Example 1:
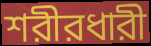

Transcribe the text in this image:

শরীরধারী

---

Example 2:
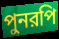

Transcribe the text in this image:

পুনরপি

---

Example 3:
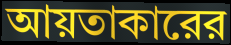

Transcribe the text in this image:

আয়তাকারের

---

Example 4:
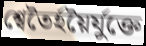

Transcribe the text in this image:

শ্বেতৈর্হয়ৈর্যুক্তে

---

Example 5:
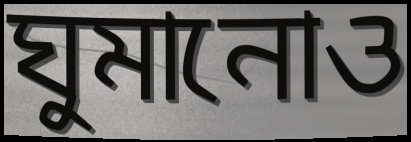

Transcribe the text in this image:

ঘুমানোও